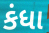
કંધા